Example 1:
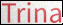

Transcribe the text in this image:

Trina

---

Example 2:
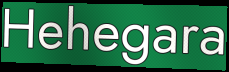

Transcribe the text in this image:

Hehegara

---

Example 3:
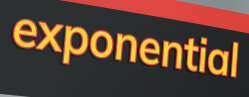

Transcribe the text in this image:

exponential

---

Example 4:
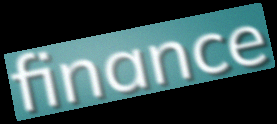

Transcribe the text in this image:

finance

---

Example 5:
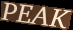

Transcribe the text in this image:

PEAK